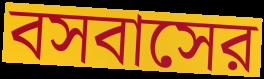
বসবাসের